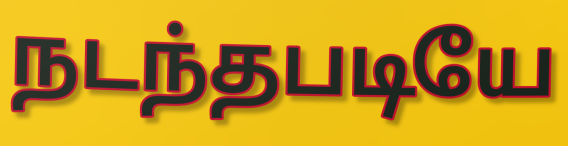
நடந்தபடியே